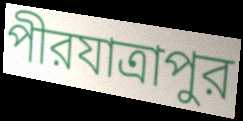
পীরযাত্রাপুর